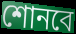
শোনবে